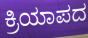
ಕ್ರಿಯಾಪದ